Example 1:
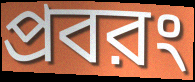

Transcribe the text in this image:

প্রবরং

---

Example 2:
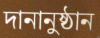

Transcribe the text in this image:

দানানুষ্ঠান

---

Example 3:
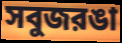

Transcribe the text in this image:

সবুজরঙা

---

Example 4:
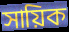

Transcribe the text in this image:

সায়িক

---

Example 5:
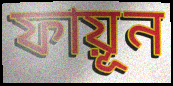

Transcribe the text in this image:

ফায়ূন